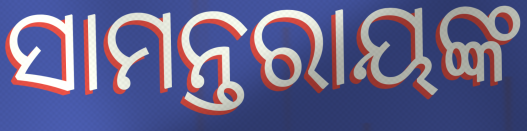
ସାମନ୍ତରାୟଙ୍କ